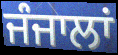
ਜੰਜਾਲਾਂ